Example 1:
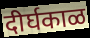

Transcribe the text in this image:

दीर्घकाळ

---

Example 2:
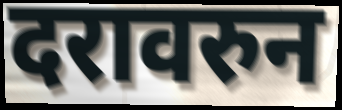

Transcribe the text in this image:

दरावरुन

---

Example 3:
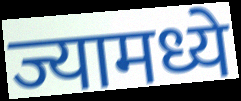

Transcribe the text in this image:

ज्यामध्ये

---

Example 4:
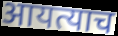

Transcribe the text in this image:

आयत्याच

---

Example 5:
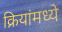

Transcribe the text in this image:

क्रियांमध्ये